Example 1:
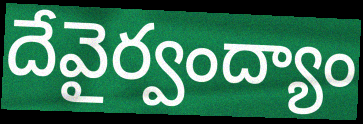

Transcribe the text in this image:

దేవైర్వంద్యాం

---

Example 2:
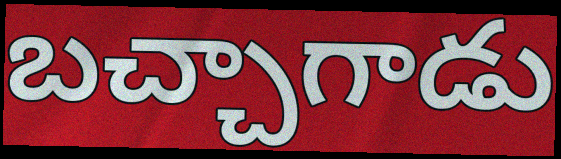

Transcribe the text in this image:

బచ్చాగాడు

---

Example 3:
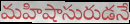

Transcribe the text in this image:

మహిషాసురుడనే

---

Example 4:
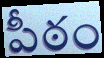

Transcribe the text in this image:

పీఠం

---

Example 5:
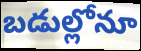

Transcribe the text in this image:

బడుల్లోనూ